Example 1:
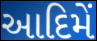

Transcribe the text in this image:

આદિમેં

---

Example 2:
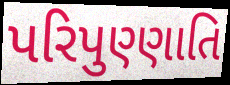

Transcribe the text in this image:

પરિપુણ્ણાતિ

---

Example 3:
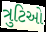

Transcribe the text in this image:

ત્રુટિઓ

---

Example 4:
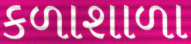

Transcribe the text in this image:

કળાશાળા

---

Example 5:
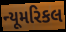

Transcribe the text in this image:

ન્યૂમરિકલ